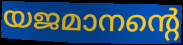
യജമാനന്റെ